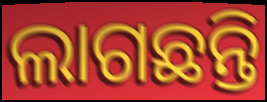
ଲାଗଛନ୍ତି